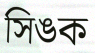
সিঙক